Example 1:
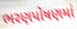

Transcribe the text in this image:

ભરણપોષણમાં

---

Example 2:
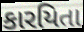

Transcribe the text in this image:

કારયિતા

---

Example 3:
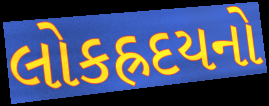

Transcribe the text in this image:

લોકહ્રદયનો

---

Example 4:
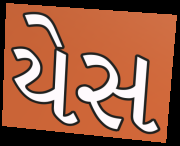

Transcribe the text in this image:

યેસ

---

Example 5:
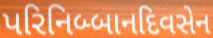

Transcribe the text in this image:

પરિનિબ્બાનદિવસેન